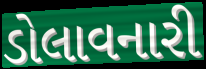
ડોલાવનારી